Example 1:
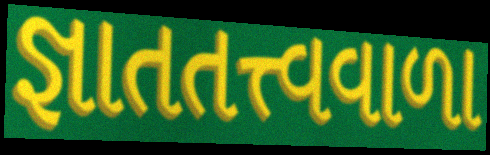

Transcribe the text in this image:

જ્ઞાતતત્ત્વવાળા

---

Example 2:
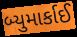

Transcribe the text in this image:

બ્યુમાર્કાઈ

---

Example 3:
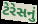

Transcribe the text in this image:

ટેરેસનું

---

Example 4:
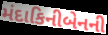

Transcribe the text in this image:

મંદાકિનીબેનની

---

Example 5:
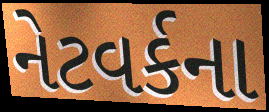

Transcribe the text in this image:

નેટવર્કના